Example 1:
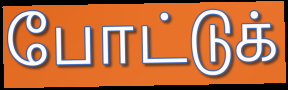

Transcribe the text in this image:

போட்டுக்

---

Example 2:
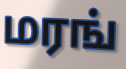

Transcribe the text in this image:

மரங்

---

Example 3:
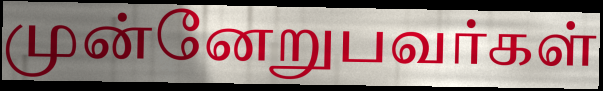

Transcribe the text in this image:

முன்னேறுபவர்கள்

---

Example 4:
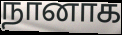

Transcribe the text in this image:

நானாக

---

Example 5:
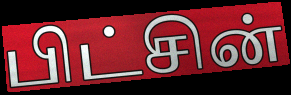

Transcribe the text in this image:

பிட்சின்